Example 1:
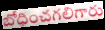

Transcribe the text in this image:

బోధించగలిగారు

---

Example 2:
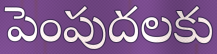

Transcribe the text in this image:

పెంపుదలకు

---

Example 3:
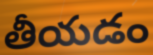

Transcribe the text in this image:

తీయడం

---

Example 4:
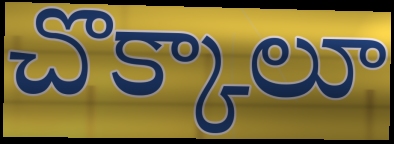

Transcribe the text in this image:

చొక్కాలూ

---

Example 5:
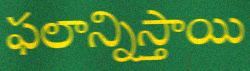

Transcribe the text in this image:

ఫలాన్నిస్తాయి